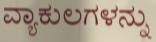
ವ್ಯಾಕುಲಗಳನ್ನು